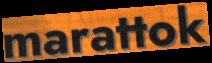
marattok